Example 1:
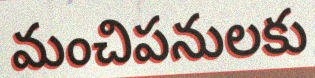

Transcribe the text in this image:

మంచిపనులకు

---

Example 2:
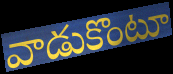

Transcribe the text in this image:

వాడుకొంటూ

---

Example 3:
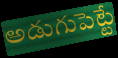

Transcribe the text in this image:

అడుగుపెట్టే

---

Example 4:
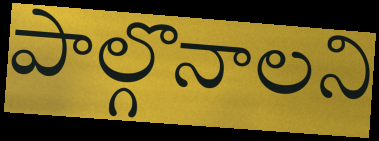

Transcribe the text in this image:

పాల్గొనాలని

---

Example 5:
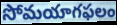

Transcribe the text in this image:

సోమయాగఫలం